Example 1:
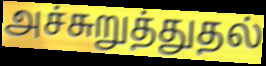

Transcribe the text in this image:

அச்சுறுத்துதல்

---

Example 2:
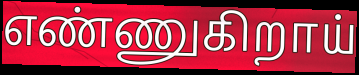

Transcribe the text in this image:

எண்ணுகிறாய்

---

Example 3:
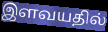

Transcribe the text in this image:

இளவயதில்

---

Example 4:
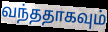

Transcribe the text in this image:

வந்ததாகவும்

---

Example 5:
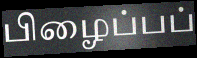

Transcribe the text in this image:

பிழைப்பப்